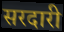
सरदारी